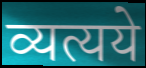
व्यत्यये